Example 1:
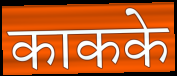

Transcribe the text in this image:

काकके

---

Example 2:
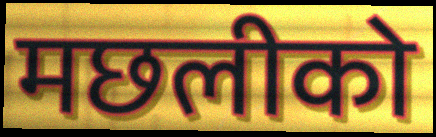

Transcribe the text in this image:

मछलीको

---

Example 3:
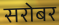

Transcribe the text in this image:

सरोबर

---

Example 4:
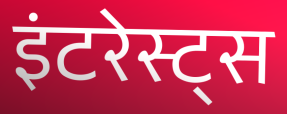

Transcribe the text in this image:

इंटरेस्ट्स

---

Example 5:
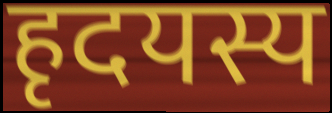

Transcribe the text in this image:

हृदयस्य